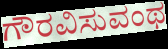
ಗೌರವಿಸುವಂಥ